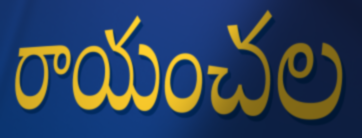
రాయంచల